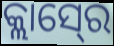
କ୍ଲାସ୍‍ରେ